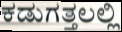
ಕಡುಗತ್ತಲಲ್ಲಿ